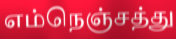
எம்நெஞ்சத்து